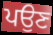
ਪਉਣ